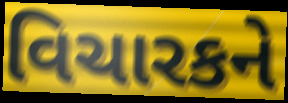
વિચારકને